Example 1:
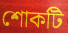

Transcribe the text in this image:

শোকটি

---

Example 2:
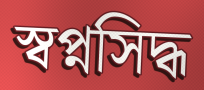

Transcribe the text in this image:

স্বপ্নসিদ্ধ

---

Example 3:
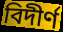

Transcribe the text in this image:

বিদীর্ণ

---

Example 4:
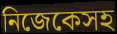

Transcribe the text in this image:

নিজেকেসহ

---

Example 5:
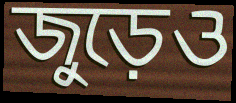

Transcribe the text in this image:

জুড়েও